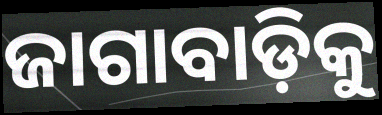
ଜାଗାବାଡ଼ିକୁ